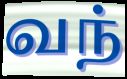
வந்